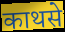
काथसे